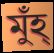
মুঁহ্